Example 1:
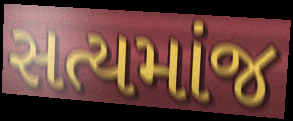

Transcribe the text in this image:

સત્યમાંજ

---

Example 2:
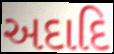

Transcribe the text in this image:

અદાદિ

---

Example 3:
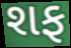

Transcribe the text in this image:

શફ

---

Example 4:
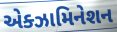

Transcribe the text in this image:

એક્ઝામિનેશન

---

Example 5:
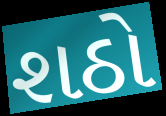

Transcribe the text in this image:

શઠો